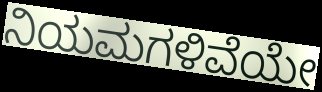
ನಿಯಮಗಳಿವೆಯೇ